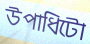
উপাধিটো